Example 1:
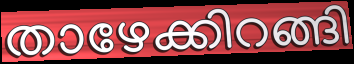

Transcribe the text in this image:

താഴേക്കിറങ്ങി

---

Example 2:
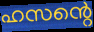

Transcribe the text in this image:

ഹസന്റെ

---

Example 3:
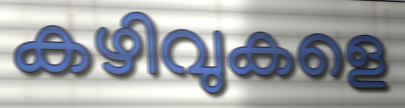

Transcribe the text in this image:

കഴിവുകളെ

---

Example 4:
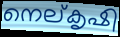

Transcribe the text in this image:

നെല്കൃഷി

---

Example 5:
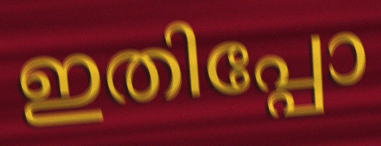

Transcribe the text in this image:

ഇതിപ്പോ